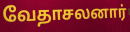
வேதாசலனார்